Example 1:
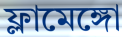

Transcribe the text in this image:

ফ্লামেঙ্গো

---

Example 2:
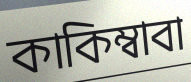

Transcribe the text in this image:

কাকিম্বাবা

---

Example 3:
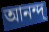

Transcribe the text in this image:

আনন্দ্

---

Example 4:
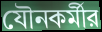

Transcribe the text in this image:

যৌনকর্মীর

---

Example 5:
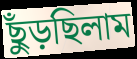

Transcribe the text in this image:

ছুঁড়ছিলাম